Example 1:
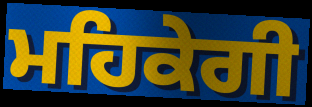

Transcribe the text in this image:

ਮਹਿਕੇਗੀ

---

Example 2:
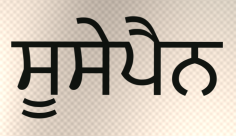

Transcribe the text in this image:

ਸੂਸੇਪੈਨ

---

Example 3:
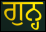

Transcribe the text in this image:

ਗੁਨ੍ਹ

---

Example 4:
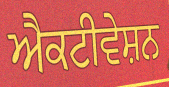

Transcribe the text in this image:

ਐਕਟੀਵੇਸ਼ਨ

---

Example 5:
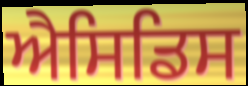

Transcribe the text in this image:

ਐਸਿਡਿਸ